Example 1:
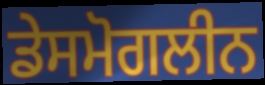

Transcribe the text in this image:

ਡੇਸਮੋਗਲੀਨ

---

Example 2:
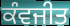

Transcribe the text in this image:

ਕੰਵਜੀਤ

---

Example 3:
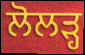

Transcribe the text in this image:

ਲੋਲੜ੍ਹ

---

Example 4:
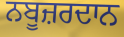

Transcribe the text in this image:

ਨਬੂਜ਼ਰਦਾਨ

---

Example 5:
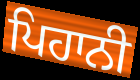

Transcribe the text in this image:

ਪਿਹਾਨੀ